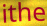
ithe